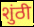
शुंठी